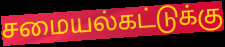
சமையல்கட்டுக்கு